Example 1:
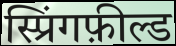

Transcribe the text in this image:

स्प्रिंगफ़ील्ड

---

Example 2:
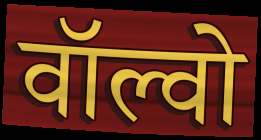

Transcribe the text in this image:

वॉल्वो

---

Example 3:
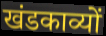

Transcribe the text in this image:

खंडकाव्यों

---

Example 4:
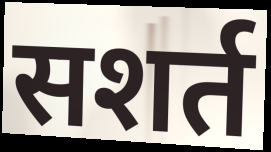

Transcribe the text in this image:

सशर्त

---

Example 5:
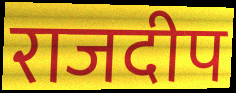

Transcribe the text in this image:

राजदीप